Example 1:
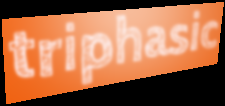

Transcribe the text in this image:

triphasic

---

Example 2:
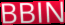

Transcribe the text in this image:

BBIN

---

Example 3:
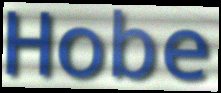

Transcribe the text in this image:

Hobe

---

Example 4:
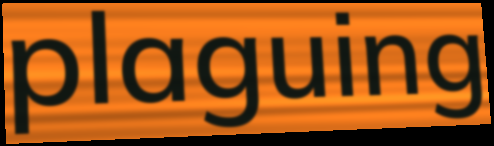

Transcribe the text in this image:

plaguing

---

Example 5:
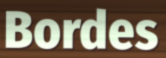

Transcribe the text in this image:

Bordes